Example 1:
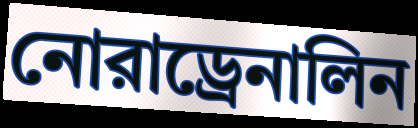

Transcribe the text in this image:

নোরাড্রেনালিন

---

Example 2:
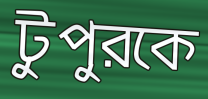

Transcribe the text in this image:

টুপুরকে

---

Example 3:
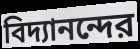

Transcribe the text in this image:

বিদ্যানন্দের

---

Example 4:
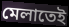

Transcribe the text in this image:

মেলাতেই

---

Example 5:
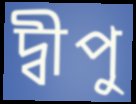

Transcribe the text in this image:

দ্বীপু